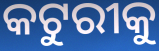
କଟୁରୀକୁ